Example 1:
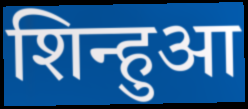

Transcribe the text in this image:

शिन्‍हुआ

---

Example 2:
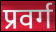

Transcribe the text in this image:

प्रवर्ग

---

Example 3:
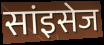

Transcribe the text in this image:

सांइसेज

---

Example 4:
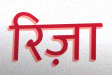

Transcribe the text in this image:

रिज़ा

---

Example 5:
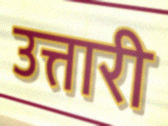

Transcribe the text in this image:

उत्तारी